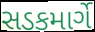
સડકમાર્ગે